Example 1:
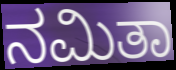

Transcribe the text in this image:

ನಮಿತಾ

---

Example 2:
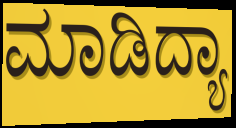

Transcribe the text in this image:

ಮಾಡಿದ್ಯಾ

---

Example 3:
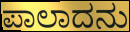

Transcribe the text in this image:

ಪಾಲಾದನು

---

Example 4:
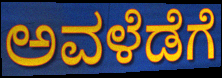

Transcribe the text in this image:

ಅವಳೆಡೆಗೆ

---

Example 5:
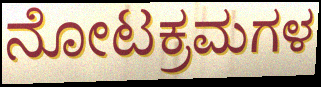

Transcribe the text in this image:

ನೋಟಕ್ರಮಗಳ